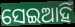
ସେଇଆହିଁ